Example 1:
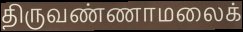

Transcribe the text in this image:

திருவண்ணாமலைக்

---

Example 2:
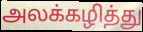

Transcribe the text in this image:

அலக்கழித்து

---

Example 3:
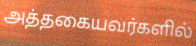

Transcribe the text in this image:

அத்தகையவர்களில்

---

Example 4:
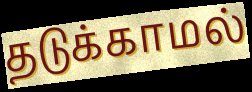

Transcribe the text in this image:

தடுக்காமல்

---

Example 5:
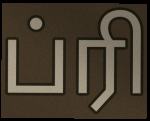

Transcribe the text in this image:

ப்ரி